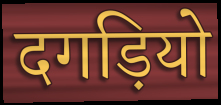
दगड़ियो